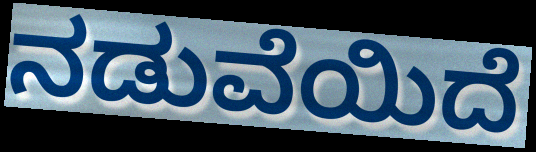
ನಡುವೆಯಿದೆ